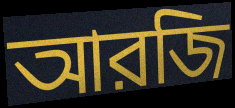
আরজি